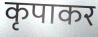
कृपाकर